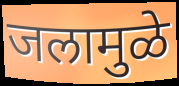
जलामुळे